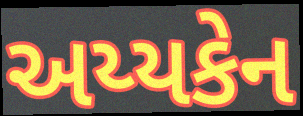
અય્યકેન